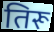
तिरू